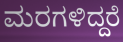
ಮರಗಳಿದ್ದರೆ